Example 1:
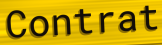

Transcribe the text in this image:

Contrat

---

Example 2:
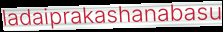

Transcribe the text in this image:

ladaiprakashanabasu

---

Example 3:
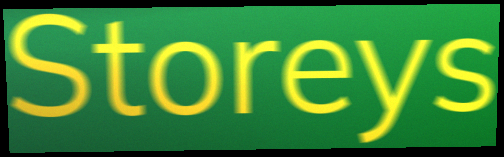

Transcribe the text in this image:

Storeys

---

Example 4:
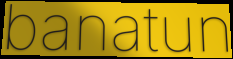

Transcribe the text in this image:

banatun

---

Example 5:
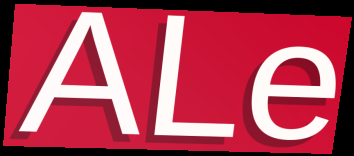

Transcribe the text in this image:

ALe